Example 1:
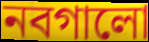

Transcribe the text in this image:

নবগালো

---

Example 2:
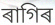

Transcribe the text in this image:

ৰাগিৰ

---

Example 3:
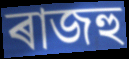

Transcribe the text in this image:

ৰাজহু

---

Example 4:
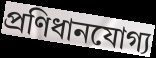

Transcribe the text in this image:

প্ৰণিধানযোগ্য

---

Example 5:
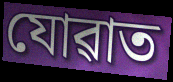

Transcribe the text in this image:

যোৱাত